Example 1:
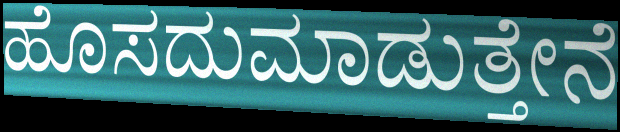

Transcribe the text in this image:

ಹೊಸದುಮಾಡುತ್ತೇನೆ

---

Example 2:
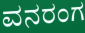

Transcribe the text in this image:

ವನರಂಗ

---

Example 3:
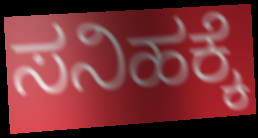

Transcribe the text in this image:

ಸನಿಹಕ್ಕೆ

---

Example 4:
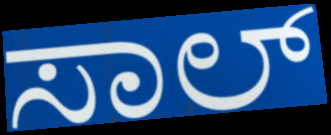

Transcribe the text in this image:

ಸಾಲ್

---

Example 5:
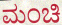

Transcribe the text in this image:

ಮಂಚಿ